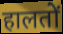
हालतों